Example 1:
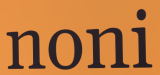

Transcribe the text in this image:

noni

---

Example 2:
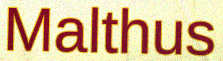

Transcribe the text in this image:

Malthus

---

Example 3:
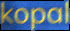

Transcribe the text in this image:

kopal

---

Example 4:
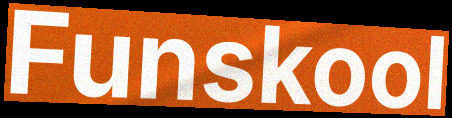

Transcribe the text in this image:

Funskool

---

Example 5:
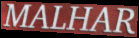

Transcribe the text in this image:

MALHAR